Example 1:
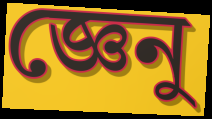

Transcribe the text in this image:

জ্ঞেনু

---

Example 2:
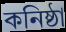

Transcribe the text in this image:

কনিষ্ঠা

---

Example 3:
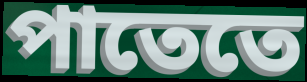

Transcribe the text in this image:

পাতেতে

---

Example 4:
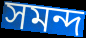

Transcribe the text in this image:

সমন্দ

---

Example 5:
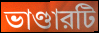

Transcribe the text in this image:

ভাণ্ডারটি